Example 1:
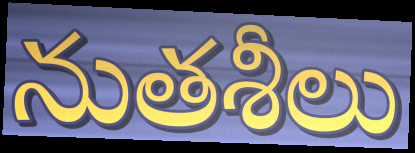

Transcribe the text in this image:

నుతశీలు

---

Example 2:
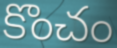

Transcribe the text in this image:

కొంచం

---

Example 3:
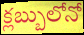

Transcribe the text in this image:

క్లబ్బులోనో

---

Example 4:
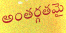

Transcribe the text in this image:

అంతర్గతమై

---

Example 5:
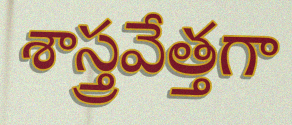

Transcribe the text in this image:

శాస్త్రవేత్తగా